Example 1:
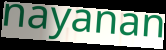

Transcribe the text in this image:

nayanan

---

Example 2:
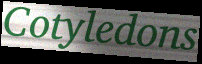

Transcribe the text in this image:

Cotyledons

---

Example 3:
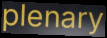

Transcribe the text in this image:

plenary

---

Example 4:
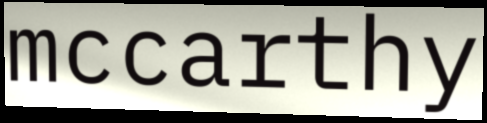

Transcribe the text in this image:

mccarthy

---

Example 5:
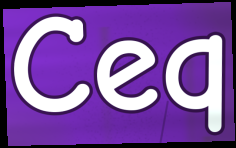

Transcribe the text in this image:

Ceq